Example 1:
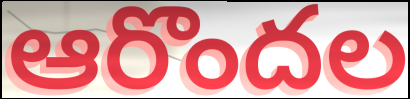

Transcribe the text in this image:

ఆరొందల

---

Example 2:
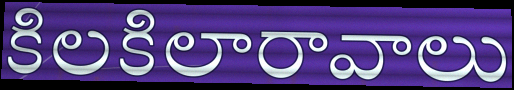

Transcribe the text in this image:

కిలకిలారావాలు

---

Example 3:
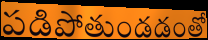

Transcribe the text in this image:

పడిపోతుండడంతో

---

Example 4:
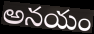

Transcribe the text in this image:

అనయం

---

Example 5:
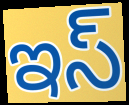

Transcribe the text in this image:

ఇస్